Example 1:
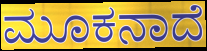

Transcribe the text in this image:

ಮೂಕನಾದೆ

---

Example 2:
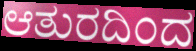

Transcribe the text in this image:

ಆತುರದಿಂದ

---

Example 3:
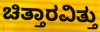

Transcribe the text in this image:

ಚಿತ್ತಾರವಿತ್ತು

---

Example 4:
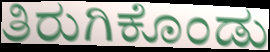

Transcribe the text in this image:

ತಿರುಗಿಕೊಂಡು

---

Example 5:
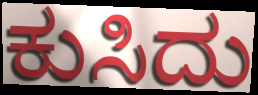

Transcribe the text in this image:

ಕುಸಿದು